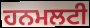
ਹਨਮਲਟੀ